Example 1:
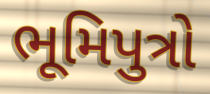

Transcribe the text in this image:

ભૂમિપુત્રો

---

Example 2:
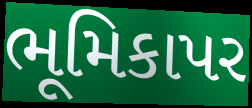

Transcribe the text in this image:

ભૂમિકાપર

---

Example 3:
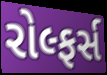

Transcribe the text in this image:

રોલ્ફર્સ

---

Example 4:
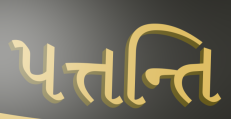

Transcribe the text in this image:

પત્તન્તિ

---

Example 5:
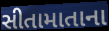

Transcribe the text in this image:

સીતામાતાના